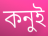
কনুই